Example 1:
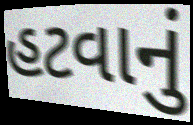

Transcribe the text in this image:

હટવાનું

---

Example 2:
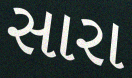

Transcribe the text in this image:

સારા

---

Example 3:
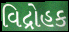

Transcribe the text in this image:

વિદ્રોહક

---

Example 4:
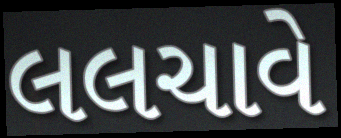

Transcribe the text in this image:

લલચાવે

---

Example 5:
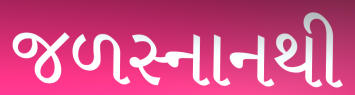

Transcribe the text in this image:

જળસ્નાનથી